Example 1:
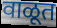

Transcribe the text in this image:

वाळूत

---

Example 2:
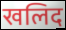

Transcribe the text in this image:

खलिद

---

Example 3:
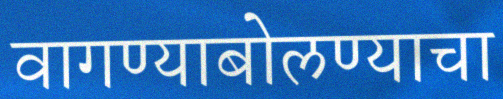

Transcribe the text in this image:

वागण्याबोलण्याचा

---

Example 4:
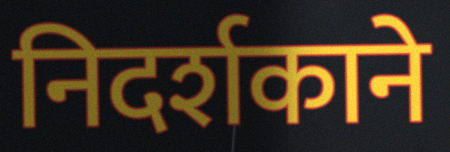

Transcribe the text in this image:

निदर्शकाने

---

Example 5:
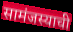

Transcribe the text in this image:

सामंजस्याची